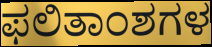
ಫಲಿತಾಂಶಗಳ